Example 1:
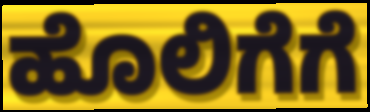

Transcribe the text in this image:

ಹೊಲಿಗೆಗೆ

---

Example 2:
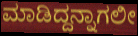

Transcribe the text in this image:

ಮಾಡಿದ್ದನ್ನಾಗಲೀ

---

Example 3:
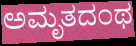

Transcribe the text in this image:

ಅಮೃತದಂಥ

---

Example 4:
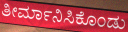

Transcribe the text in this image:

ತೀರ್ಮಾನಿಸಿಕೊಂಡು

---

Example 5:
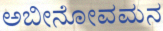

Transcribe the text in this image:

ಅಬೀನೋವಮನ